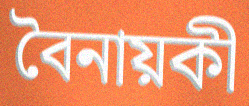
বৈনায়কী